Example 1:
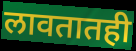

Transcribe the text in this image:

लावतातही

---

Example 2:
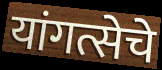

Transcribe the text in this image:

यांगत्सेचे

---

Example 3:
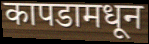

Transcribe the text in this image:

कापडामधून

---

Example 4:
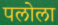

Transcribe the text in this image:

पलोला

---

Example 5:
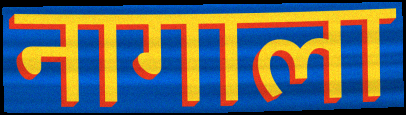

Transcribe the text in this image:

नागाला